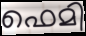
ഫെമി